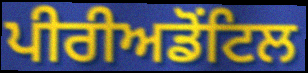
ਪੀਰੀਅਡੋਂਟਿਲ